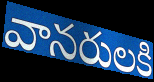
వానరులకి